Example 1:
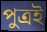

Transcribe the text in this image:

পুত্ৰই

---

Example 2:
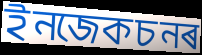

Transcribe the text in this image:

ইনজেকচনৰ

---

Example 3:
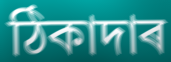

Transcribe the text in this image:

ঠিকাদাৰ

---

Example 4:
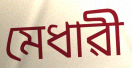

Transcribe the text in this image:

মেধাৱী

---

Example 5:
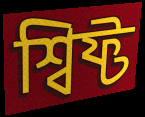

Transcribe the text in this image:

শ্বিফ্ট